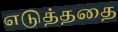
எடுத்ததை